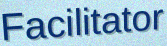
Facilitator